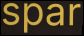
spar